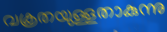
വക്രതയുള്ളതാകുന്നു